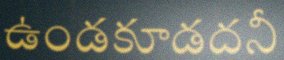
ఉండకూడదనీ